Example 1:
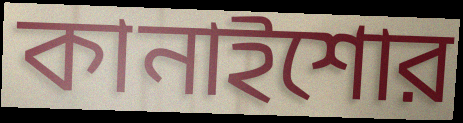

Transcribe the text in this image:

কানাইশোর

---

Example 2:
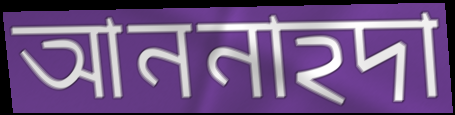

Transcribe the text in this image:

আননাহদা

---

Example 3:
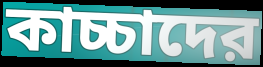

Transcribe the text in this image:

কাচ্চাদের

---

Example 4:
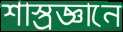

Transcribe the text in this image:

শাস্ত্রজ্ঞানে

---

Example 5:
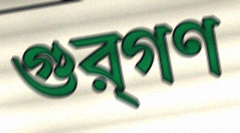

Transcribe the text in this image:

গুর্‌গণ